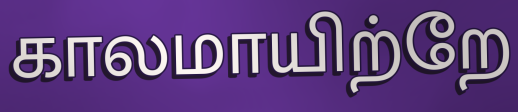
காலமாயிற்றே